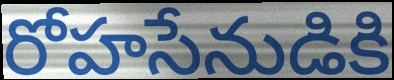
రోహసేనుడికి